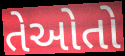
તેઓતો